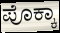
ಪೊಕ್ಕಾ